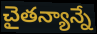
చైతన్యాన్నే